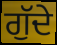
ਗੁੱਦੇ